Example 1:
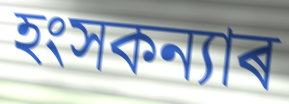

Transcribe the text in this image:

হংসকন্যাৰ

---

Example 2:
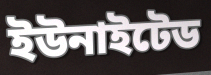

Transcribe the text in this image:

ইউনাইটেড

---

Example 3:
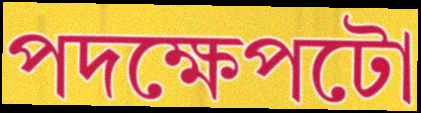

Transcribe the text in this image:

পদক্ষেপটো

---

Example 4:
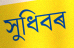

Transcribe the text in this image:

সুধিবৰ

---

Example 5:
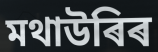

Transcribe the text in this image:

মথাউৰিৰ